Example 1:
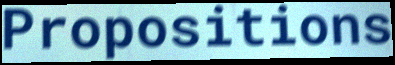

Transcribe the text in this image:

Propositions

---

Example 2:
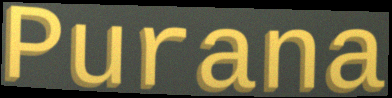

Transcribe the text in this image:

Purana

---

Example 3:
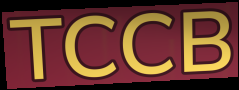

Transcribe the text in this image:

TCCB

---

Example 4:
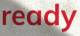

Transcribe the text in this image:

ready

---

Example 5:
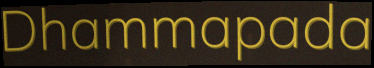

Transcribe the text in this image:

Dhammapada